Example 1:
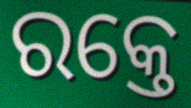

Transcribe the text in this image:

ରକ୍ତେ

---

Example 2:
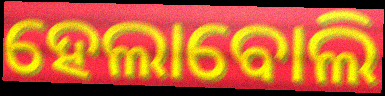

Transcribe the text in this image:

ହେଲାବୋଲି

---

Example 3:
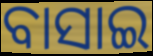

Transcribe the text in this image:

ବାସାଇ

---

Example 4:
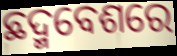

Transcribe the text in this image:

ଛଦ୍ମବେଶରେ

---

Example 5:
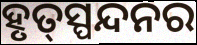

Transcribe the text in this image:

ହୃତ୍‌ସ୍ପନ୍ଦନର